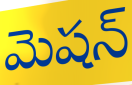
మెషన్